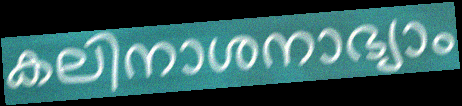
കലിനാശനാഭ്യാം